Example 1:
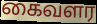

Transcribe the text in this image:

கைவளர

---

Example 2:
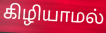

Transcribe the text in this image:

கிழியாமல்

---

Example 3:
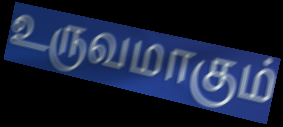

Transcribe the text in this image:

உருவமாகும்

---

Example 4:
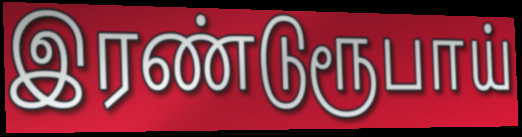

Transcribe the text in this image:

இரண்டுரூபாய்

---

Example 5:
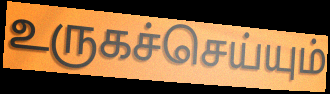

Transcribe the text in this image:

உருகச்செய்யும்